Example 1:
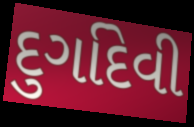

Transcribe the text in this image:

દુર્ગાદેવી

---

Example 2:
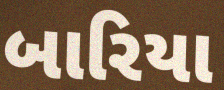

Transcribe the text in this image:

બારિયા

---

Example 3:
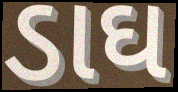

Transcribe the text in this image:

ડાઘ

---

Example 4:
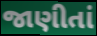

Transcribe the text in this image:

જાણીતાં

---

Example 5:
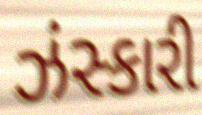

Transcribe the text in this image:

ઝંસ્કારી